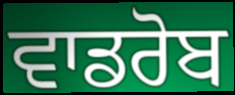
ਵਾਡਰੋਬ